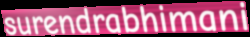
surendrabhimani